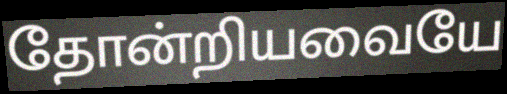
தோன்றியவையே